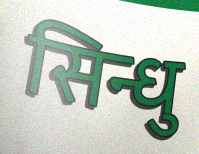
सिन्‍धु